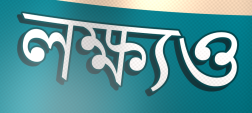
লক্ষ্যও